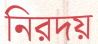
নিরদয়